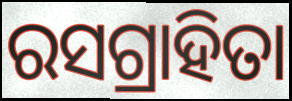
ରସଗ୍ରାହିତା